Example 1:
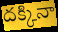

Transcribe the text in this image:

దక్కినా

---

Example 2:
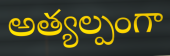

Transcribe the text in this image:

అత్యల్పంగా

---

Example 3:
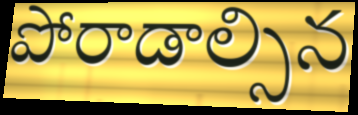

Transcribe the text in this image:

పోరాడాల్సిన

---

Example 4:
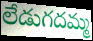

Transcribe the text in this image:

లేడుగదమ్మ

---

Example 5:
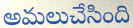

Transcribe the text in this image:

అమలుచేసింది